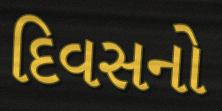
દિવસનો